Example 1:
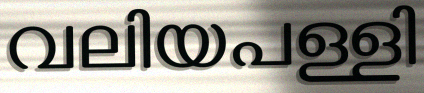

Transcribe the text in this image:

വലിയപള്ളി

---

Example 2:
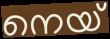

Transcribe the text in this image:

നെയ്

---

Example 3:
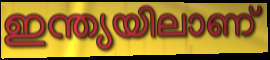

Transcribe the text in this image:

ഇന്ത്യയിലാണ്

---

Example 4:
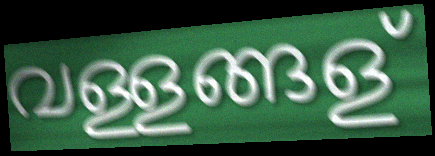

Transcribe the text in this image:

വള്ളങ്ങള്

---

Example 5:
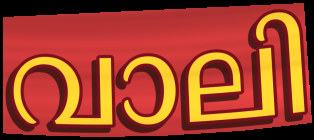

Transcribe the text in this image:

വാലി